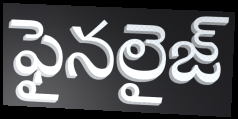
ఫైనలైజ్